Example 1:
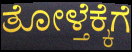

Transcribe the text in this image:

ತೋಳ್ತೆಕ್ಕೆಗೆ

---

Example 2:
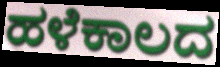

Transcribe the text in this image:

ಹಳೆಕಾಲದ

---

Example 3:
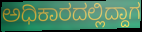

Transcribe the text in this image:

ಅಧಿಕಾರದಲ್ಲಿದ್ದಾಗ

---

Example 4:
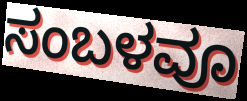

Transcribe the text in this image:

ಸಂಬಳವೂ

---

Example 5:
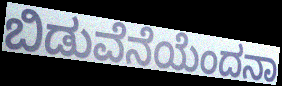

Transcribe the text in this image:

ಬಿಡುವೆನೆಯೆಂದನಾ